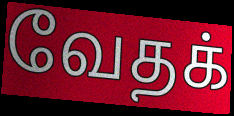
வேதக்